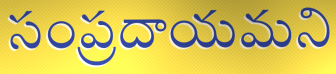
సంప్రదాయమని